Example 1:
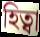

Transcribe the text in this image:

হিত্বা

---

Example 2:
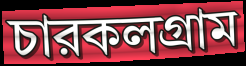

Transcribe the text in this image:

চারকলগ্রাম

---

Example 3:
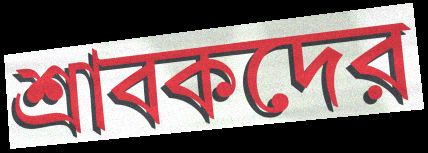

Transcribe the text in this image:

শ্রাবকদের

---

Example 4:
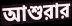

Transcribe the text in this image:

আশুরার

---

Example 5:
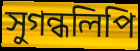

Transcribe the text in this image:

সুগন্ধলিপি